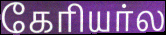
கேரியர்ல